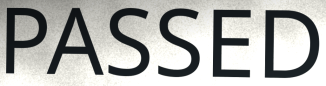
PASSED